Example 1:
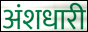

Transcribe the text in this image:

अंशधारी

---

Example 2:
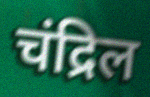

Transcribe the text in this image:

चंद्रिल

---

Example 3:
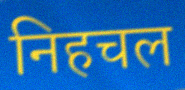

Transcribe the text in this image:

निहचल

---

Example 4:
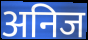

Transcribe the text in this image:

अनिज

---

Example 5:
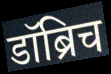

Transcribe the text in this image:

डॉब्रिच